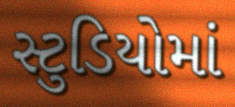
સ્ટુડિયોમાં